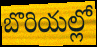
బొరియల్లో